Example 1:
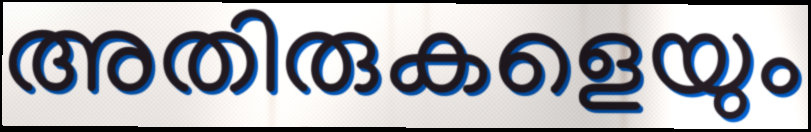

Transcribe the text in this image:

അതിരുകളെയും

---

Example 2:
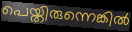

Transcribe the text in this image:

പെയ്തിരുന്നെങ്കിൽ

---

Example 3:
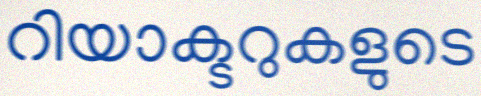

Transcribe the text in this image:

റിയാക്ടറുകളുടെ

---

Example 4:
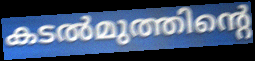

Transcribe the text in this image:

കടൽമുത്തിന്റെ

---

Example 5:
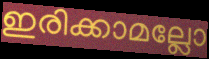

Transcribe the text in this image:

ഇരിക്കാമല്ലോ